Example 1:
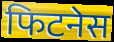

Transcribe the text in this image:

फिटनेस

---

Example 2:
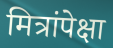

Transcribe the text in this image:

मित्रांपेक्षा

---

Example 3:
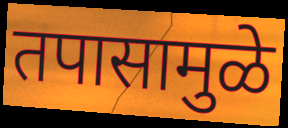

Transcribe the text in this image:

तपासामुळे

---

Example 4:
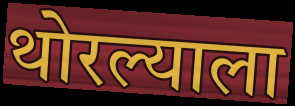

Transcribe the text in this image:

थोरल्याला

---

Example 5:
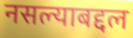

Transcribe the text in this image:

नसल्याबद्दल